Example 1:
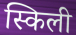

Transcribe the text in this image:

स्किली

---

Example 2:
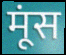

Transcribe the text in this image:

मूंस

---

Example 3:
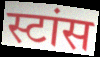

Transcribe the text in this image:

स्टांस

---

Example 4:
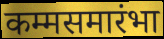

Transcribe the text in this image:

कम्मसमारंभा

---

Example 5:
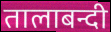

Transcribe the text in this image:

तालाबन्दी